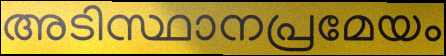
അടിസ്ഥാനപ്രമേയം